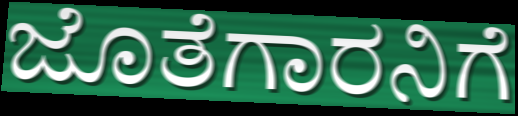
ಜೊತೆಗಾರನಿಗೆ